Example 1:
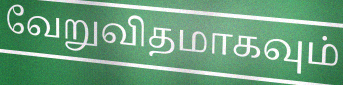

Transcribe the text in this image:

வேறுவிதமாகவும்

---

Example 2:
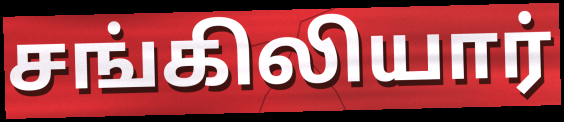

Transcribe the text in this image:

சங்கிலியார்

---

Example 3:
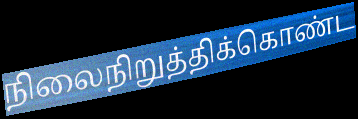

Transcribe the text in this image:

நிலைநிறுத்திக்கொண்ட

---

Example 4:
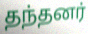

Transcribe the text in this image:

தந்தனர்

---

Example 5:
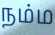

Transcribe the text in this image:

நம்ம